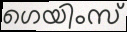
ഗെയിംസ്